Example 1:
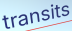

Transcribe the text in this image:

transits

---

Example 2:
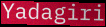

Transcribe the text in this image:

Yadagiri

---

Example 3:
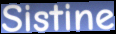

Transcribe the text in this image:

Sistine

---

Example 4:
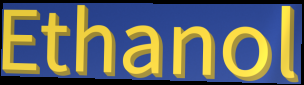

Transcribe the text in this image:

Ethanol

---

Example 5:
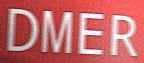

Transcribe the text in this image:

DMER